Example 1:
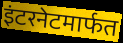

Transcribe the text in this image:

इंटरनेटमार्फत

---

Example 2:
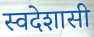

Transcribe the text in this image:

स्वदेशासी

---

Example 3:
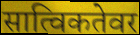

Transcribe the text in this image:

सात्विकतेवर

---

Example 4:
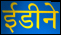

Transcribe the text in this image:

ईडीने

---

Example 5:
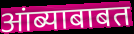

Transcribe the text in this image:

आंब्याबाबत